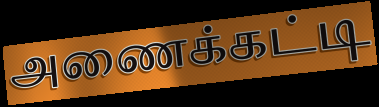
அணைக்கட்டி